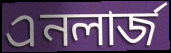
এনলার্জ